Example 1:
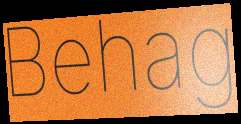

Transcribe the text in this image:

Behag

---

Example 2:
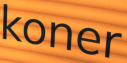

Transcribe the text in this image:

koner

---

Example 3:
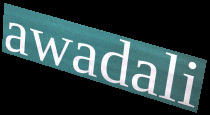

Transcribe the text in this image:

awadali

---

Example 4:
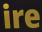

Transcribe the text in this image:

ire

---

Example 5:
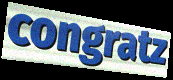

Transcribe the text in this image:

congratz